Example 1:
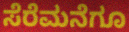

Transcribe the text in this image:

ಸೆರೆಮನೆಗೂ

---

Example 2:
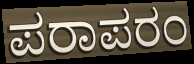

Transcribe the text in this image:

ಪರಾಪರಂ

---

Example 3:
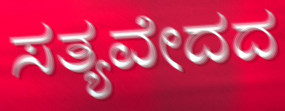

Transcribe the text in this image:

ಸತ್ಯವೇದದ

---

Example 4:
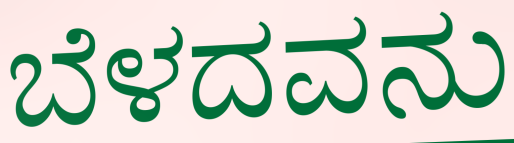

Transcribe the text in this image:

ಬೆಳದವನು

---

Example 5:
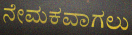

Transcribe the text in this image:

ನೇಮಕವಾಗಲು